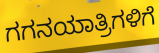
ಗಗನಯಾತ್ರಿಗಳಿಗೆ